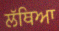
ਲੱਥਿਆ